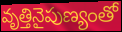
వృత్తినైపుణ్యంతో